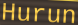
Hurun